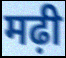
मढ़ी